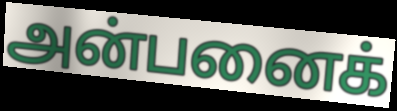
அன்பனைக்